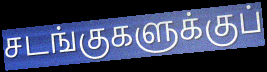
சடங்குகளுக்குப்